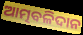
ଆତ୍ମବଳିଦାନ